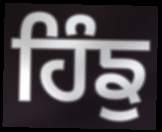
ਹਿੰਙੁ